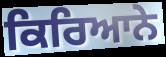
ਕਿਰਿਆਨੇ